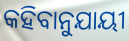
କହିବାନୁଯାୟୀ